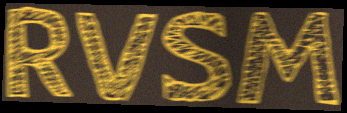
RVSM